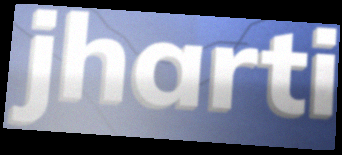
jharti